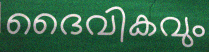
ദൈവികവും